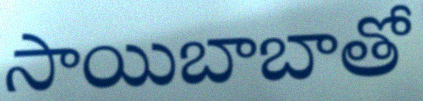
సాయిబాబాతో